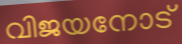
വിജയനോട്